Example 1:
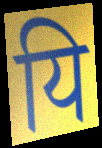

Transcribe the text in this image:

यि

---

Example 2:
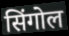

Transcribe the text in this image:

सिंगोल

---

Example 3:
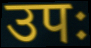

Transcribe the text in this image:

उपः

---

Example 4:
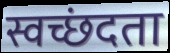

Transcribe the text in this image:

स्वच्छंदता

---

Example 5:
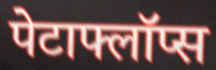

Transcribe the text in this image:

पेटाफ्लॉप्स